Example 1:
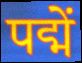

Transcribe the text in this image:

पद्में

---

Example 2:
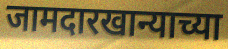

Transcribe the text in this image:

जामदारखान्याच्या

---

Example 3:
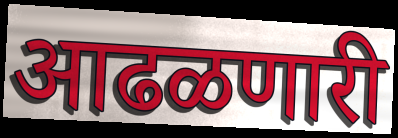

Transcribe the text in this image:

आढळणारी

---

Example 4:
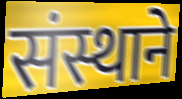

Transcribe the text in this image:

संस्थाने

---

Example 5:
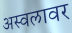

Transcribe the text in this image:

अस्वलावर